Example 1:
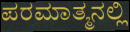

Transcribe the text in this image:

ಪರಮಾತ್ಮನಲ್ಲಿ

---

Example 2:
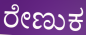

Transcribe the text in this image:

ರೇಣುಕ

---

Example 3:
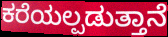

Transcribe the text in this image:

ಕರೆಯಲ್ಪಡುತ್ತಾನೆ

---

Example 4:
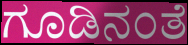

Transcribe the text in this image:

ಗೂಡಿನಂತೆ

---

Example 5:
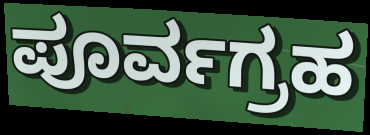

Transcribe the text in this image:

ಪೂರ್ವಗ್ರಹ